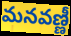
మనవణ్ణీ